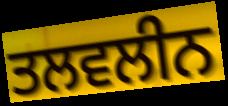
ਤਲਵਲੀਨ